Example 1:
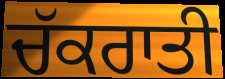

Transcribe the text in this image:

ਚੱਕਰਾਤੀ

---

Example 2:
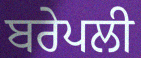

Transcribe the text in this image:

ਬਰੇਪਲੀ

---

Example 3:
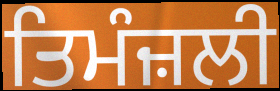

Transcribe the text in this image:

ਤਿਮੰਜ਼ਲੀ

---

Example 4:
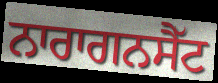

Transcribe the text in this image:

ਨਾਰਾਗਨਸੈੱਟ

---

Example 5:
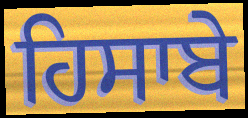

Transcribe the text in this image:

ਹਿਸਾਬੇ